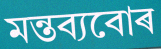
মন্তব্যবোৰ